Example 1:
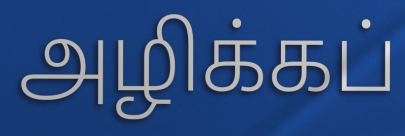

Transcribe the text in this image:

அழிக்கப்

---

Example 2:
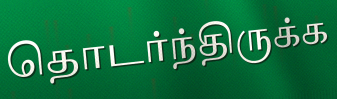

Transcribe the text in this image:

தொடர்ந்திருக்க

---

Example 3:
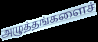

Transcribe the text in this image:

அழுத்தங்களைச்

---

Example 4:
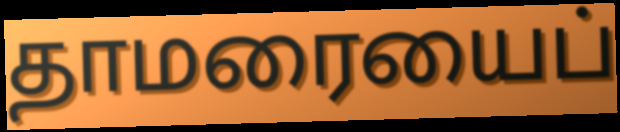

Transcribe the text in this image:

தாமரையைப்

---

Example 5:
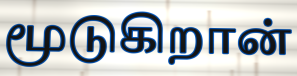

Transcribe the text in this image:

மூடுகிறான்